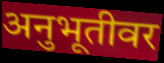
अनुभूतीवर